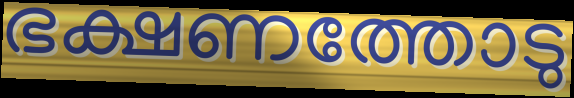
ഭക്ഷണത്തോടു